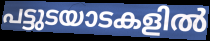
പട്ടുടയാടകളിൽ